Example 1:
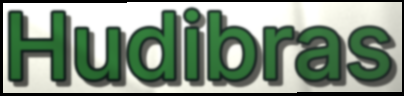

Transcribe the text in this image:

Hudibras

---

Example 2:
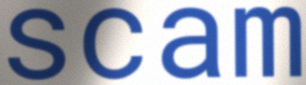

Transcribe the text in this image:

scam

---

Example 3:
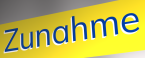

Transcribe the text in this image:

Zunahme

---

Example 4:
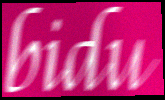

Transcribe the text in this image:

bidu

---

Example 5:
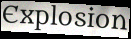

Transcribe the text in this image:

Explosion